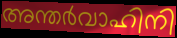
അന്തർവാഹിനി